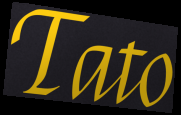
Tato